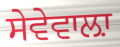
ਸੇਵੇਵਾਲ਼ਾ